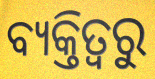
ବ୍ୟକ୍ତିତ୍ୱରୁ